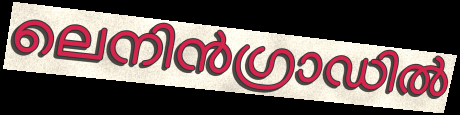
ലെനിൻഗ്രാഡിൽ